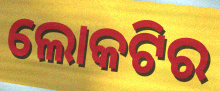
ଲୋକଟିର